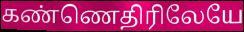
கண்ணெதிரிலேயே